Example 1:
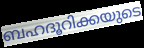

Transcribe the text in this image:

ബഹദൂറിക്കയുടെ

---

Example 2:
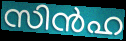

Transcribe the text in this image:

സിൻഹ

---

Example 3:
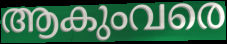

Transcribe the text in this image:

ആകുംവരെ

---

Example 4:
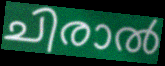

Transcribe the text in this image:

ചിരാൽ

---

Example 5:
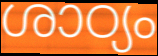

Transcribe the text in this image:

ശാഠ്യം